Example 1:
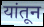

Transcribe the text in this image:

यांतून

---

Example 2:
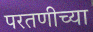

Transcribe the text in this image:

परतणीच्या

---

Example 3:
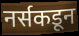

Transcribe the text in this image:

नर्सकडून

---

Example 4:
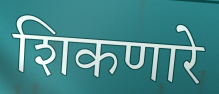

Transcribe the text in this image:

शिकणारे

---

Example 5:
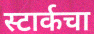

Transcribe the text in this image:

स्टार्कचा